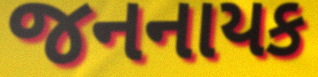
જનનાયક